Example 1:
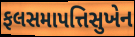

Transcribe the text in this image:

ફલસમાપત્તિસુખેન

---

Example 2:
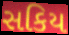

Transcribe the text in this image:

સકિય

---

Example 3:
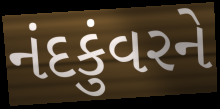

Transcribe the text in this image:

નંદકુંવરને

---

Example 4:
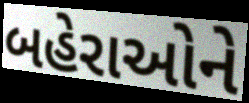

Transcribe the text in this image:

બહેરાઓને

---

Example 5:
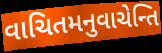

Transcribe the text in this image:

વાચિતમનુવાચેન્તિ